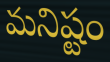
మనిష్టం